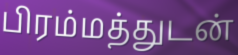
பிரம்மத்துடன்